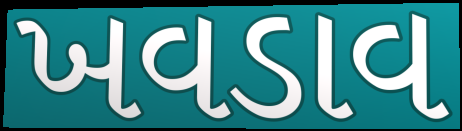
ખવડાવ